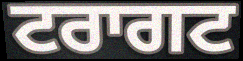
ਟਰਾਗਟ